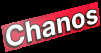
Chanos